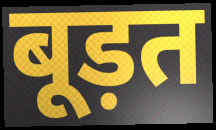
बूड़त